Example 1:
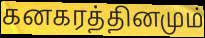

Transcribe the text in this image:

கனகரத்தினமும்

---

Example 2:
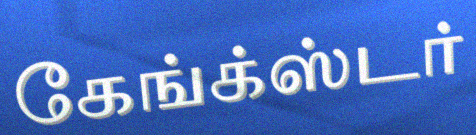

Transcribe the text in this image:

கேங்க்ஸ்டர்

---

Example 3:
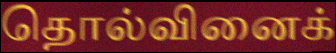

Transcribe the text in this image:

தொல்வினைக்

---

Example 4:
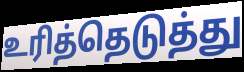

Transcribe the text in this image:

உரித்தெடுத்து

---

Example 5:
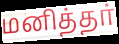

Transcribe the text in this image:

மனித்தர்